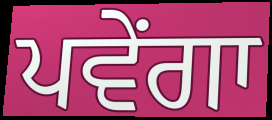
ਪਵੇਂਗਾ